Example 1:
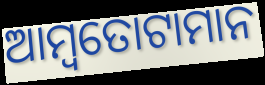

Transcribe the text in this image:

ଆମ୍ବତୋଟାମାନ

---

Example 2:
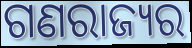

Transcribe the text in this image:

ଗଣରାଜ୍ୟର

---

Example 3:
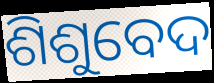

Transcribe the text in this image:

ଶିଶୁବେଦ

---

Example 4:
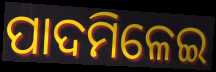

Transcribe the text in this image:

ପାଦମିଳେଇ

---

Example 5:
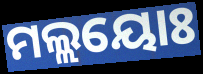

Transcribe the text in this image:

ମଲ୍ଲୟୋଃ